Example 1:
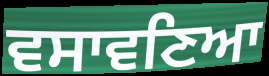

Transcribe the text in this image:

ਵਸਾਵਣਿਆ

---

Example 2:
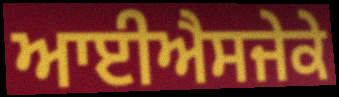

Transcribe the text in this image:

ਆਈਐਸਜੇਕੇ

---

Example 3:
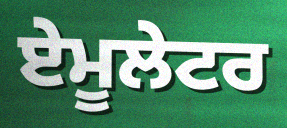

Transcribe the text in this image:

ਏਮੂਲੇਟਰ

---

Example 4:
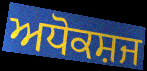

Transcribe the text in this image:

ਅਧੋਕਸ਼ਜ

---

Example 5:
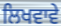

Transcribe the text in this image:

ਲਿਖਵਾਵੇ